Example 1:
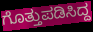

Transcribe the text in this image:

ಗೊತ್ತುಪಡಿಸಿದ್ದ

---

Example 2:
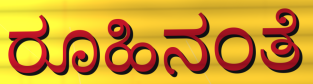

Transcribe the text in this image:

ರೂಹಿನಂತೆ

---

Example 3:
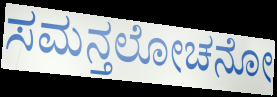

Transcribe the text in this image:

ಸಮನ್ತಲೋಚನೋ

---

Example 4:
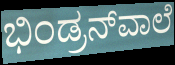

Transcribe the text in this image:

ಭಿಂಡ್ರನ್‌ವಾಲೆ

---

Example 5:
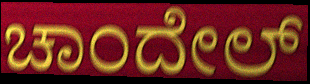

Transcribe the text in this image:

ಚಾಂದೇಲ್